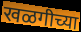
खळगीच्या